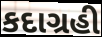
કદાગ્રહી